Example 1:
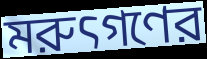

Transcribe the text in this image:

মরুৎগণের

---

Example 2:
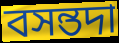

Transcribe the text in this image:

বসন্তদা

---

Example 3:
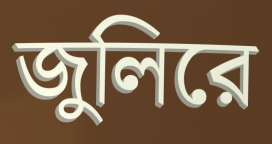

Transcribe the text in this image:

জুলিরে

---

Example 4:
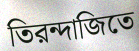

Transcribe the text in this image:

তিরন্দাজিতে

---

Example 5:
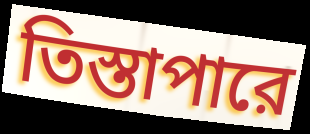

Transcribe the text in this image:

তিস্তাপারে